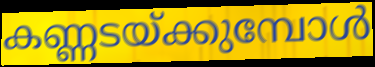
കണ്ണടയ്ക്കുമ്പോൾ